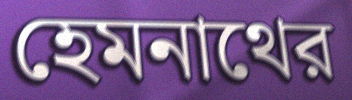
হেমনাথের